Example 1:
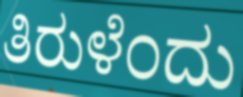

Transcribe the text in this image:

ತಿರುಳೆಂದು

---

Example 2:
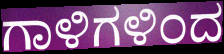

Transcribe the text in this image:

ಗಾಳಿಗಳಿಂದ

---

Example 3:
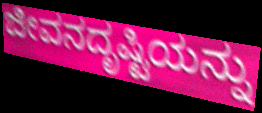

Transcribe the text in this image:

ಜೀವನದೃಷ್ಟಿಯನ್ನು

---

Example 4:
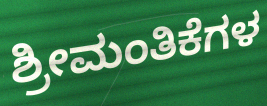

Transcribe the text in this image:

ಶ್ರೀಮಂತಿಕೆಗಳ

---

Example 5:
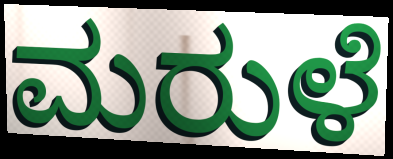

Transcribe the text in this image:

ಮರುಳೆ